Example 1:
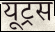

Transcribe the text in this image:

यूट्रस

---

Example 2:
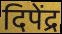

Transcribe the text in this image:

दिपेंद्र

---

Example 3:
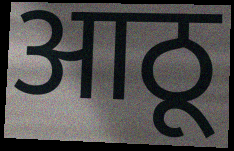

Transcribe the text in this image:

आठू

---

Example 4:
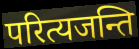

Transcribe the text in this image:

परित्यजन्ति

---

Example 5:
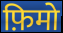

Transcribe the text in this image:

फ़िमो